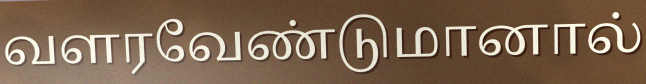
வளரவேண்டுமானால்